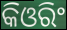
କିଓରିଂ